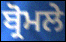
ਬ੍ਰੋਮਲੇ